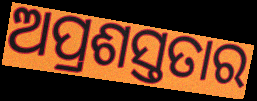
ଅପ୍ରଶସ୍ତତାର